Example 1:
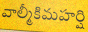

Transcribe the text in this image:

వాల్మీకిమహర్షి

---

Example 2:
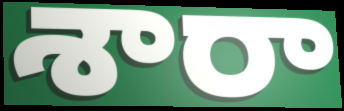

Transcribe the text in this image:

శారా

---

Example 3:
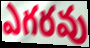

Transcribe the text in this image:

ఎగరవు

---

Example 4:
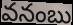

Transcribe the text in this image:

వనంబు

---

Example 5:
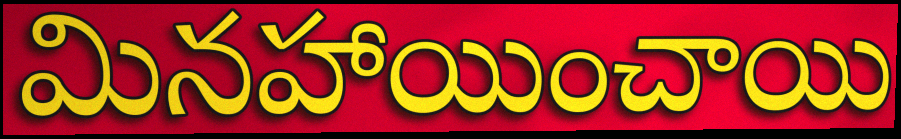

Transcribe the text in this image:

మినహాయించాయి